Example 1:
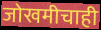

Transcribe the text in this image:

जोखमीचाही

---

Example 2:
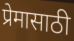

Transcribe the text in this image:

प्रेमासाठी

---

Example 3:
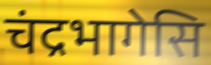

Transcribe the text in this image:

चंद्रभागेसि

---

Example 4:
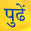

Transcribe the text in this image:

पुढें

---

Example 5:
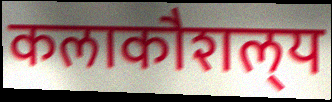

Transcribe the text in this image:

कलाकौशल्य